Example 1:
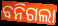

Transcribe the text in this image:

ବନିଗଲା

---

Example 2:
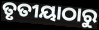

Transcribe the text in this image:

ତୃତୀୟାଠାରୁ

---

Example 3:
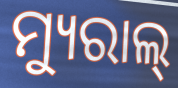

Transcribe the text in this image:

ମ୍ୟୁରାଲ୍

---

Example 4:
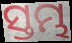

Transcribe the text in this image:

ସ୍ତମ୍ଭ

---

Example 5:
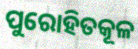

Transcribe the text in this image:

ପୁରୋହିତକୂଳ